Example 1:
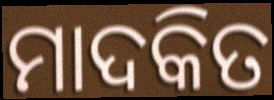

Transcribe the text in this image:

ମାଦକିତ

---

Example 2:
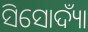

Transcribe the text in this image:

ସିସୋଦ୍ୟାଁ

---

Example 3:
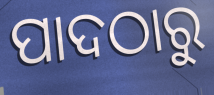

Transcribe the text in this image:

ପାଦଠାରୁ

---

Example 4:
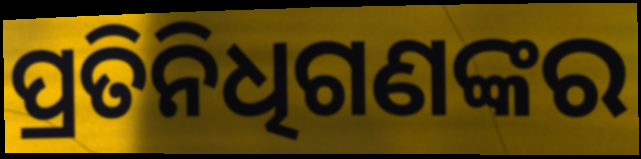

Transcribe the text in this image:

ପ୍ରତିନିଧିଗଣଙ୍କର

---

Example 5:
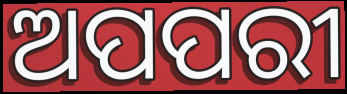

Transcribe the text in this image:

ଅପପରୀ